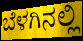
ಬೆಳಗಿನಲ್ಲಿ